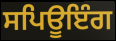
ਸਪਿਊਇੰਗ